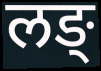
लङ्